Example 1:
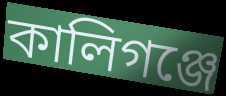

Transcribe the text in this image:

কালিগঞ্জে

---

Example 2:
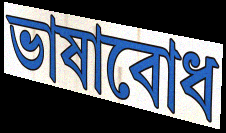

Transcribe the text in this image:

ভাষাবোধ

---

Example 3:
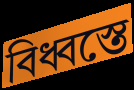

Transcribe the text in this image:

বিধ্বস্তে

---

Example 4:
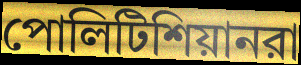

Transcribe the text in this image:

পোলিটিশিয়ানরা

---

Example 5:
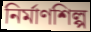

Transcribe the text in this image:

নির্মাণশিল্প